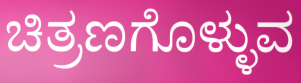
ಚಿತ್ರಣಗೊಳ್ಳುವ